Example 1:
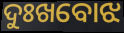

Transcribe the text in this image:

ଦୁଃଖବୋଝ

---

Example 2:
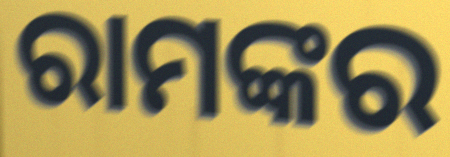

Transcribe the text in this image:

ରାମଙ୍କର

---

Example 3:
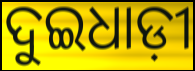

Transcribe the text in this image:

ଦୁଇଧାଡ଼ୀ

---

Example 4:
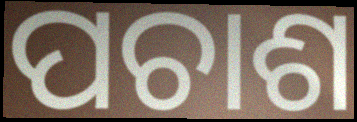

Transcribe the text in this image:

ପଚାଶ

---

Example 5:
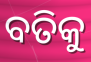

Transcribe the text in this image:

ବତିକୁ